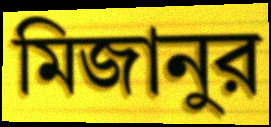
মিজানুর